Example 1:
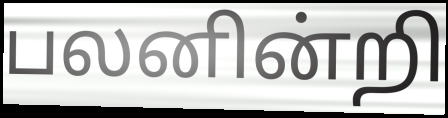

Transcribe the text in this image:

பலனின்றி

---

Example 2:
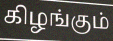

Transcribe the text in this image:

கிழங்கும்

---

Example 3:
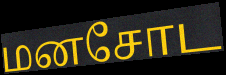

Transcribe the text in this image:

மனசோட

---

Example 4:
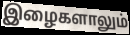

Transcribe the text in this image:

இழைகளாலும்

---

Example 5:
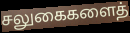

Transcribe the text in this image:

சலுகைகளைத்